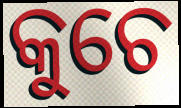
କୁଚେ